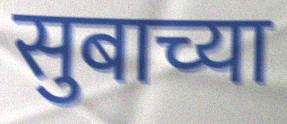
सुबाच्या